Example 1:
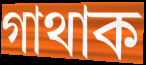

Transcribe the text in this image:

গাথাক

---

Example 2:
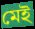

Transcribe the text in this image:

মেই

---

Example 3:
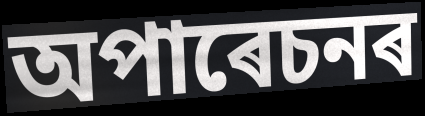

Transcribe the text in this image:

অপাৰেচনৰ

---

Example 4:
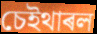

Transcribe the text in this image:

চেইথাৰল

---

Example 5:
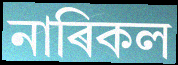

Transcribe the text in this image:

নাৰিকল